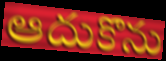
ఆదుకొను